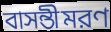
বাসন্তীমরণ